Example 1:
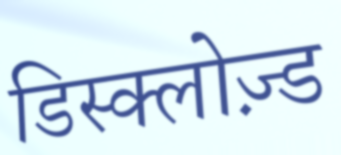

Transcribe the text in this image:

डिस्क्लोज़्ड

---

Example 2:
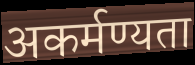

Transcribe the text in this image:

अकर्मण्यता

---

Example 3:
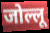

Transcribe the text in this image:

जोल्लू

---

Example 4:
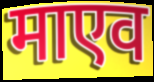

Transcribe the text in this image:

माएव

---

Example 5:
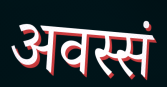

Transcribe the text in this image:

अवस्सं